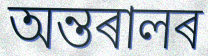
অন্তৰালৰ